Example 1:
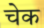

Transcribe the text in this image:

चेक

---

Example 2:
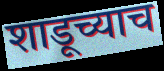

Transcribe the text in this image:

शाडूच्याच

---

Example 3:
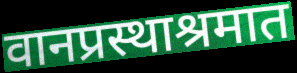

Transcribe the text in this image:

वानप्रस्थाश्रमात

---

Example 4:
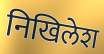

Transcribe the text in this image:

निखिलेश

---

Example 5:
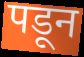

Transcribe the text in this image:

पडून